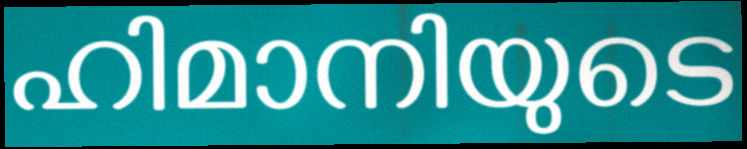
ഹിമാനിയുടെ